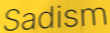
Sadism